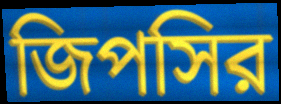
জিপসির